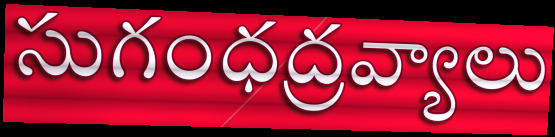
సుగంధద్రవ్యాలు